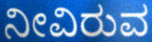
ನೀವಿರುವ